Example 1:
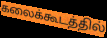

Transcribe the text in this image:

கலைக்கூடத்தில்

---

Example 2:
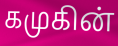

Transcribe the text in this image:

கமுகின்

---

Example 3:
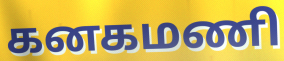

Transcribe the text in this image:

கனகமணி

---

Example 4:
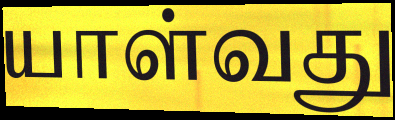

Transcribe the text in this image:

யாள்வது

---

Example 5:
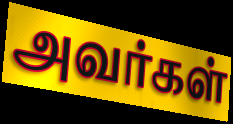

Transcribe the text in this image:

அவர்கள்